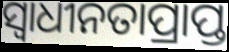
ସ୍ବାଧୀନତାପ୍ରାପ୍ତ